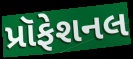
પ્રૉફેશનલ